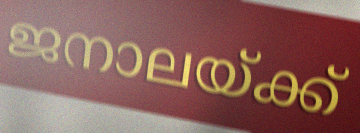
ജനാലയ്ക്ക്